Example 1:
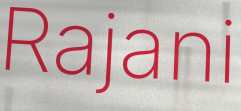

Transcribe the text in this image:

Rajani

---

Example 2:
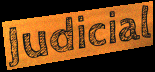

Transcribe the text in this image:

Judicial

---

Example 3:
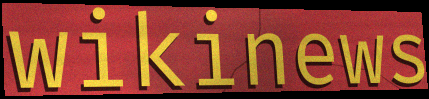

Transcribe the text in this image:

wikinews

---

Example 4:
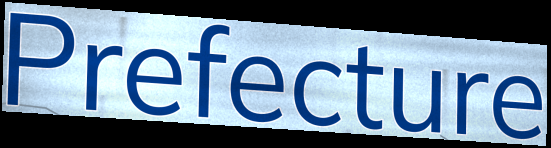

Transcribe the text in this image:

Prefecture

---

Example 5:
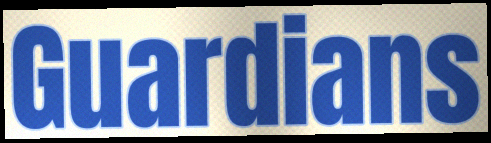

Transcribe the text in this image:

Guardians